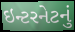
ઇન્ટરનેટનું